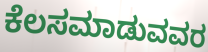
ಕೆಲಸಮಾಡುವವರ